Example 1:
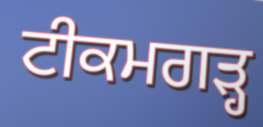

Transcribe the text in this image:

ਟੀਕਮਗੜ੍ਹ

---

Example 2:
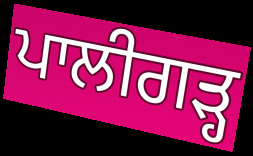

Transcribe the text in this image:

ਪਾਲੀਗੜ੍ਹ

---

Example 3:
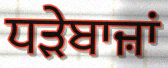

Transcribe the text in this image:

ਧੜੇਬਾਜ਼ਾਂ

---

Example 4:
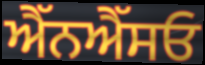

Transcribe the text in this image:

ਐੱਨਐੱਸਓ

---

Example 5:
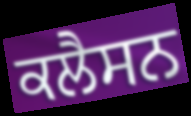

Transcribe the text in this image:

ਕਲੈਸਨ